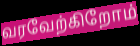
வரவேற்கிறோம்